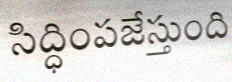
సిద్ధింపజేస్తుంది